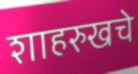
शाहरुखचे